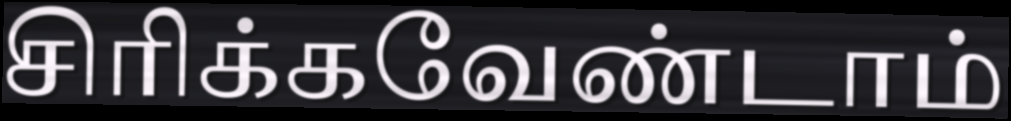
சிரிக்கவேண்டாம்